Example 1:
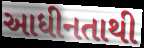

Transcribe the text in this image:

આધીનતાથી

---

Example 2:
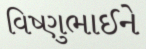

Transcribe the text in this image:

વિષ્ણુભાઈને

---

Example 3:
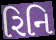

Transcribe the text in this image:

રિનિ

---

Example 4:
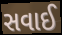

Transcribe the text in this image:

સવાઈ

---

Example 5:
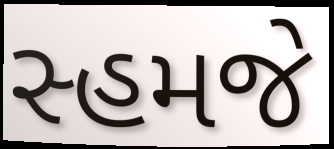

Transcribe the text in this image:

સ્હમજે